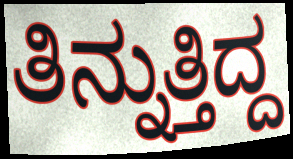
ತಿನ್ನುತ್ತಿದ್ದ